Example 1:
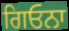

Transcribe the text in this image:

ਗਿਓਨਾ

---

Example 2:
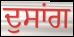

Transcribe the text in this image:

ਦੁਸਾਂਗ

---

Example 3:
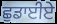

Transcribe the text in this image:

ਛੁਡਾਈਏ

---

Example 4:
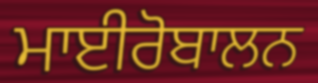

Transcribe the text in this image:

ਮਾਈਰੋਬਾਲਨ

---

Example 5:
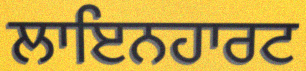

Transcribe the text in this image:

ਲਾਇਨਹਾਰਟ